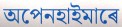
অপেনহাইমাৰে